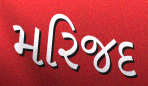
મરિજદ